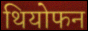
थियोफन